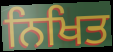
ਨਿਖਿਤ